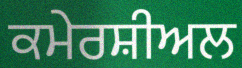
ਕਮੇਰਸ਼ੀਅਲ